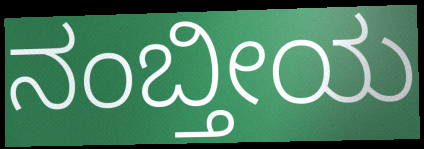
ನಂಬ್ತೀಯ